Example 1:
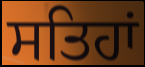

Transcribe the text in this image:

ਸਤਿਹਾਂ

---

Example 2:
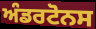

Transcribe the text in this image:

ਅੰਡਰਟੋਨਸ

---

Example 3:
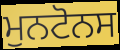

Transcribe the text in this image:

ਮੁਨਟੋਨਸ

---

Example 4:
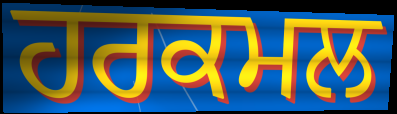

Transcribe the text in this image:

ਹਰਕਮਲ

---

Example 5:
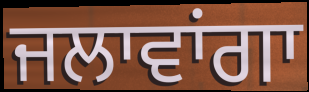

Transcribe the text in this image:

ਜਲਾਵਾਂਗਾ